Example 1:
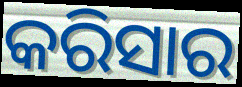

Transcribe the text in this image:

କରିସାର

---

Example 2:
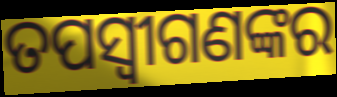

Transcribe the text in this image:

ତପସ୍ୱୀଗଣଙ୍କର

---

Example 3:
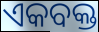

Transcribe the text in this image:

ଏକବକ୍ତ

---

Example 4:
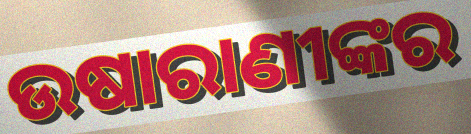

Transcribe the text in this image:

ଉଷାରାଣୀଙ୍କର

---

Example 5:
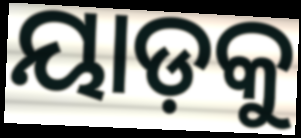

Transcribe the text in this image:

ୟାଡ଼କୁ